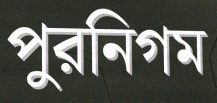
পুরনিগম